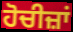
ਹੋਚੀਜ਼ਾਂ